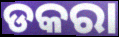
ଡକରା